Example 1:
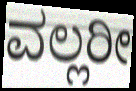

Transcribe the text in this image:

ವಲ್ಲರೀ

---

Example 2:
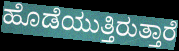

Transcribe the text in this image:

ಹೊಡೆಯುತ್ತಿರುತ್ತಾರೆ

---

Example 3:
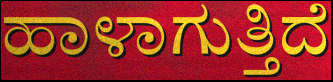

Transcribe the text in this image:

ಹಾಳಾಗುತ್ತಿದೆ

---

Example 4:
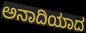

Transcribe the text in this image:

ಅನಾದಿಯಾದ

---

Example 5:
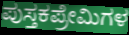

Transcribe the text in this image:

ಪುಸ್ತಕಪ್ರೇಮಿಗಳ